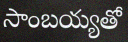
సాంబయ్యతో